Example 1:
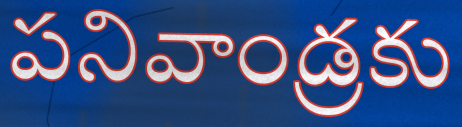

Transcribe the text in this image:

పనివాండ్రకు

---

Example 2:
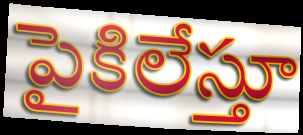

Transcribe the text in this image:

పైకిలేస్తూ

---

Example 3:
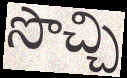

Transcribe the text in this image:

సొచ్చి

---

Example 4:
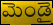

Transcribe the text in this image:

మెండై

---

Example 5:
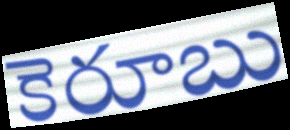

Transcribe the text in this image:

కెరూబు